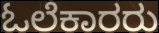
ಓಲೆಕಾರರು